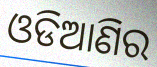
ଓଡିଆଣିର